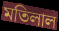
মতিলাল